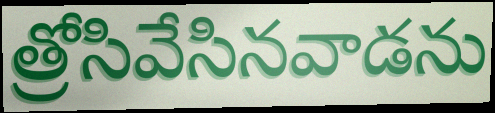
త్రోసివేసినవాడను